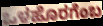
ಒಳಹೊರಗೆಂಬ